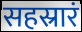
सहस्रारं